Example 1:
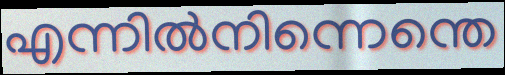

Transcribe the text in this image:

എന്നിൽനിന്നെന്തെ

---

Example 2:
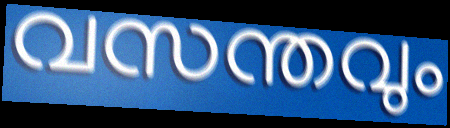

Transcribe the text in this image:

വസന്തവും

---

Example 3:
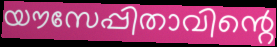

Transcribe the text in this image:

യൗസേപ്പിതാവിന്റെ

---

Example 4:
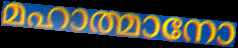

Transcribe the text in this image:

മഹാത്മാനോ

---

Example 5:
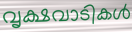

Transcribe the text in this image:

വൃക്ഷവാടികൾ